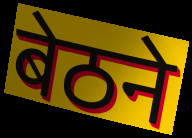
बेठने